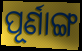
ପୂର୍ଣାଙ୍ଗ